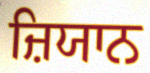
ਜ਼ਿਯਾਨ